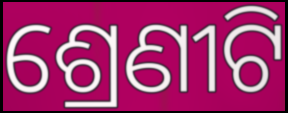
ଶ୍ରେଣୀଟି